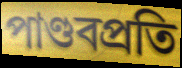
পাণ্ডবপ্রতি